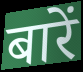
बारें